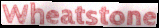
Wheatstone